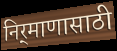
निर्माणासाठी